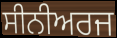
ਸੀਨੀਅਰਜ